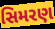
સિમરણ